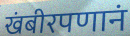
खंबीरपणानं